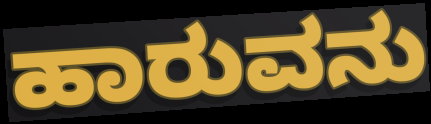
ಹಾರುವನು